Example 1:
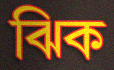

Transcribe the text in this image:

ঝিক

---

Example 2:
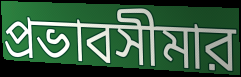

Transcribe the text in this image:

প্রভাবসীমার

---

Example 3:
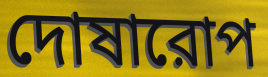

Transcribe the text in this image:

দোষারোপ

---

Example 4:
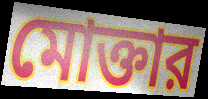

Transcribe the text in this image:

মোক্তার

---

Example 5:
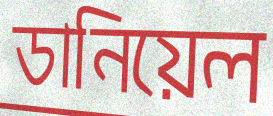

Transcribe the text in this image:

ডানিয়েল